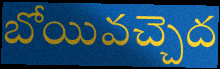
బోయివచ్చెద